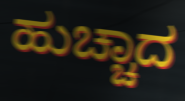
ಹುಚ್ಚಾದ